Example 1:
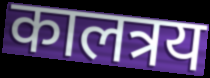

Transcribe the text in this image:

कालत्रय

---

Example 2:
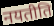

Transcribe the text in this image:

नयतीति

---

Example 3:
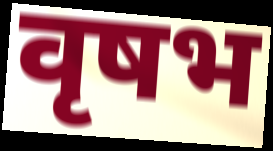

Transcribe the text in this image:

वृषभ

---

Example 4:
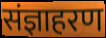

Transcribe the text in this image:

संज्ञाहरण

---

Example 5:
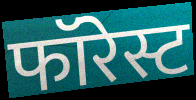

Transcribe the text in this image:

फॉरेस्ट